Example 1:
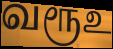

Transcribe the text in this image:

வரூஉ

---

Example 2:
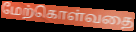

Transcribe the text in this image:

மேற்கொள்வதை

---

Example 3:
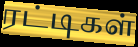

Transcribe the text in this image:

ரட்டிகள்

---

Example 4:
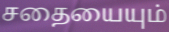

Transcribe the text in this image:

சதையையும்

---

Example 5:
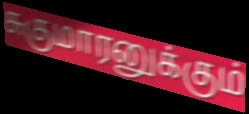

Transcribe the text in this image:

சுகுமாரனுக்கும்